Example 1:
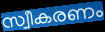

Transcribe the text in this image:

സ്വീകരണം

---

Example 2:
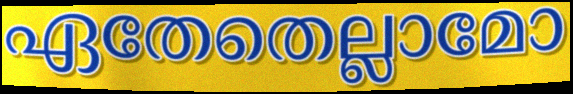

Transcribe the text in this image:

ഏതേതെല്ലാമോ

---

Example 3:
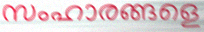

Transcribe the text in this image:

സംഹാരങ്ങളെ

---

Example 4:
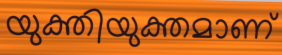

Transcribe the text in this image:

യുക്തിയുക്തമാണ്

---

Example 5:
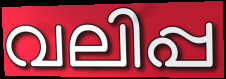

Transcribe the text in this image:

വലിപ്പ